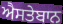
ਐਸਤੇਬਾਨ